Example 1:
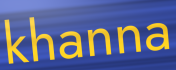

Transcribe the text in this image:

khanna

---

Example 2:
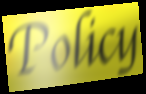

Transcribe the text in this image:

Policy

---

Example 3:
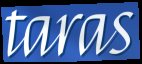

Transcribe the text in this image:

taras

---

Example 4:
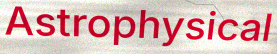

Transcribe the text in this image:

Astrophysical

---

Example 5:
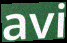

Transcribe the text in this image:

avi